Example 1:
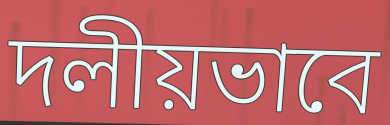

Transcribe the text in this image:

দলীয়ভাবে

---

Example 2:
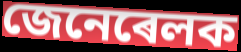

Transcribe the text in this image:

জেনেৰেলক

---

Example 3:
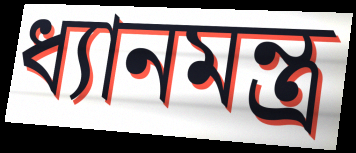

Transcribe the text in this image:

ধ্যানমন্ত্ৰ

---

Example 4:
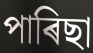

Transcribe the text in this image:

পাৰিছা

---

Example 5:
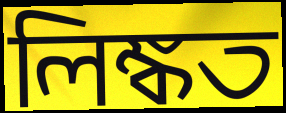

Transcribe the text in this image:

লিঙ্কত